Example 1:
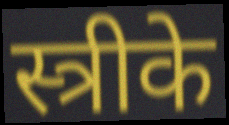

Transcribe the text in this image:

स्त्रीके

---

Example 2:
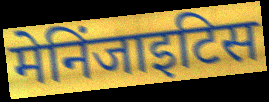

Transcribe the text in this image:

मेनिंजाइटिस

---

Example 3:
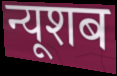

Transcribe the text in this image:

न्यूशब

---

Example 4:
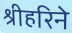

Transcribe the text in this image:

श्रीहरिने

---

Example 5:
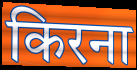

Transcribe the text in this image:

किरना